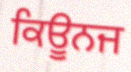
ਕਿਊਨਜ